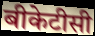
बीकेटीसी